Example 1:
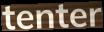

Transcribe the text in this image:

tenter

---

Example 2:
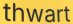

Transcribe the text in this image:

thwart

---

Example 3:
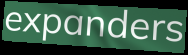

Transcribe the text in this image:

expanders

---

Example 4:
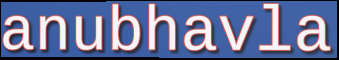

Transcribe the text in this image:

anubhavla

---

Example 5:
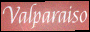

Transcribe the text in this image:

Valparaiso